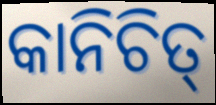
କାନିଚିତ୍